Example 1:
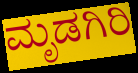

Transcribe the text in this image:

ಮೃಡಗಿರಿ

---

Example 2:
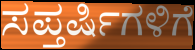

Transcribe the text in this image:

ಸಪ್ತರ್ಷಿಗಳಿಗೆ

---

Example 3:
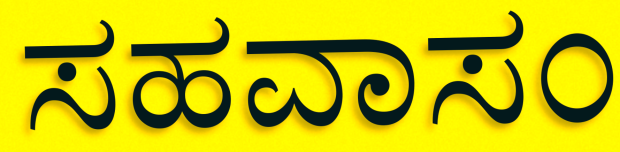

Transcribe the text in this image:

ಸಹವಾಸಂ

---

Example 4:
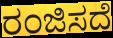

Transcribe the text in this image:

ರಂಜಿಸದೆ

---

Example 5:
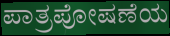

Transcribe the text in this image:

ಪಾತ್ರಪೋಷಣೆಯ